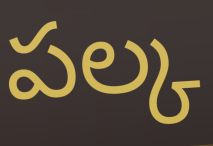
పల్క